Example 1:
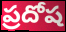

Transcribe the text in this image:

ప్రదోష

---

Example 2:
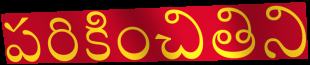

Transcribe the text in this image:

పరికించితిని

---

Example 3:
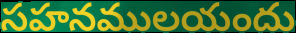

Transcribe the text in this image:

సహనములయందు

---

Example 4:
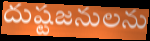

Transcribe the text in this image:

దుష్టజనులను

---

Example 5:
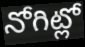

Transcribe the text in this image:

నోగిట్లో